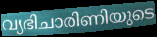
വ്യഭിചാരിണിയുടെ